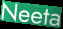
Neeta